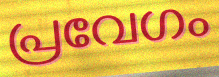
പ്രവേഗം